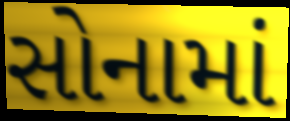
સોનામાં